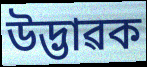
উদ্ভাৱক